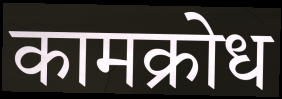
कामक्रोध